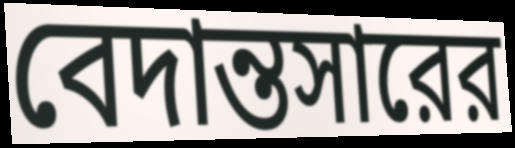
বেদান্তসারের